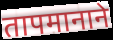
तापमानाने